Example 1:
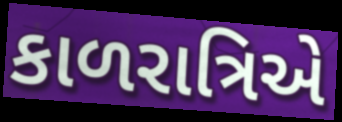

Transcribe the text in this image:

કાળરાત્રિએ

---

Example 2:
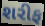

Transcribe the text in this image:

શરીફ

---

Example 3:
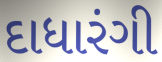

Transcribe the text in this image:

દાધારંગી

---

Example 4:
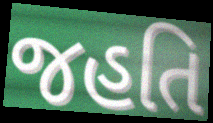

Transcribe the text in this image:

જહતિ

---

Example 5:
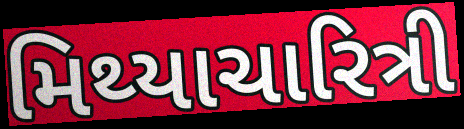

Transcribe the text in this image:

મિથ્યાચારિત્રી